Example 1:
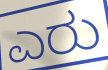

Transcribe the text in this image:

ಎರು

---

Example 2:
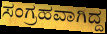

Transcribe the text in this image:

ಸಂಗ್ರಹವಾಗಿದ್ದ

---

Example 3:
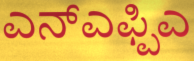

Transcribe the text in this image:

ಎನ್ಎಫ್ಪಿಎ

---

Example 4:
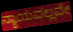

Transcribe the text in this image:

ನ್ಯಾಯವಲ್ಲವೇ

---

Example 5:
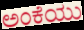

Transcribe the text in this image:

ಅಂಕೆಯು